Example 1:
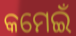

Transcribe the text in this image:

କମେଇଁ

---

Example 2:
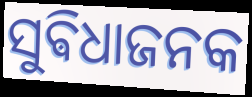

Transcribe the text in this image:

ସୁଵିଧାଜନକ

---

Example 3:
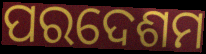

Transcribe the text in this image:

ପରଦେଶମ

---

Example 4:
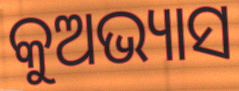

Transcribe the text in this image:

କୁଅଭ୍ୟାସ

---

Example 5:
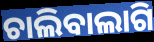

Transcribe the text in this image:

ଚାଲିବାଲାଗି